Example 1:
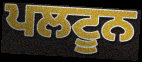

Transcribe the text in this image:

ਪਲਟੂਨ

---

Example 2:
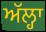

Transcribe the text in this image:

ਅੱਲ੍ਹਾ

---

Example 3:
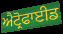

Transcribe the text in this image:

ਐਟ੍ਰੋਫਾਈਡ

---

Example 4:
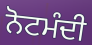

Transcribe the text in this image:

ਨੋਟਮੰਦੀ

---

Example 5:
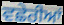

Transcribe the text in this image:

ਵਛੇਰੀਆਂ